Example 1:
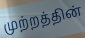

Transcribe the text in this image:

முற்றத்தின்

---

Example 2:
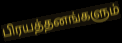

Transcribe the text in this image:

பிரயத்தனங்களும்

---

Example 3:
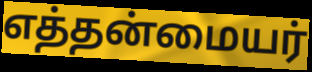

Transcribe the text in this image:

எத்தன்மையர்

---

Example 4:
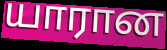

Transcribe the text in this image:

யாரான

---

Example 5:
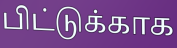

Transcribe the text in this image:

பிட்டுக்காக